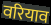
वरियाव